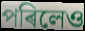
পৰিলেও